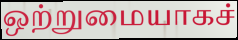
ஒற்றுமையாகச்